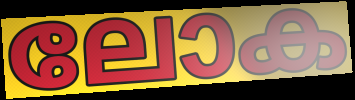
ലോക